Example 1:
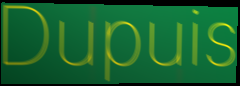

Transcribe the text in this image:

Dupuis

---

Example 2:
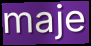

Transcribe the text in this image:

maje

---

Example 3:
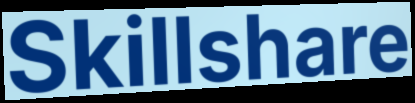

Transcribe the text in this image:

Skillshare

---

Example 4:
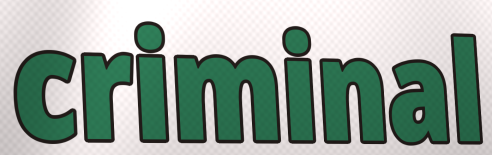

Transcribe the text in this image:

criminal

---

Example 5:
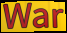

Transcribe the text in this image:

War